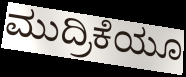
ಮುದ್ರಿಕೆಯೂ